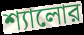
শ্যালোর